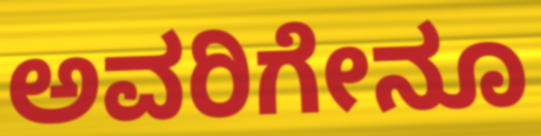
ಅವರಿಗೇನೂ